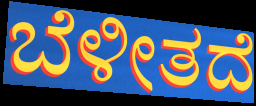
ಬೆಳೀತದೆ